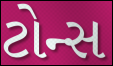
ટોન્સ